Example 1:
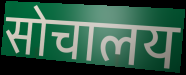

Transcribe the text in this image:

सोचालय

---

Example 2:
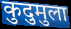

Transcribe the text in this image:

कुदुमुला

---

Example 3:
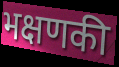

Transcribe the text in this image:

भक्षणकी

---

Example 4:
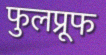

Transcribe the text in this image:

फुलप्रूफ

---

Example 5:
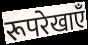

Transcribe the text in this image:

रूपरेखाएँ